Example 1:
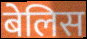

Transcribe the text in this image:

बेलिस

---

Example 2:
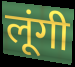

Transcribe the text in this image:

लूंगी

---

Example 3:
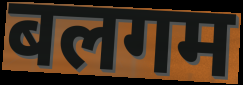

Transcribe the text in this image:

बलगम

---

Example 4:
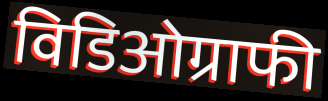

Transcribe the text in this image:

विडिओग्राफी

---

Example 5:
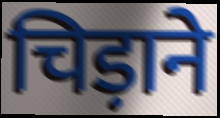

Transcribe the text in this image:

चिड़ाने